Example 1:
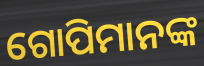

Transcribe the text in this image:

ଗୋପିମାନଙ୍କ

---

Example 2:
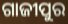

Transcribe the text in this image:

ଗାଜୀପୁର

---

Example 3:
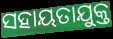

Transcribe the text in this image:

ସହାୟତାଯୁକ୍ତ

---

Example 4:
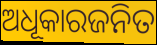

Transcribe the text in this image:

ଅଧୂକାରଜନିତ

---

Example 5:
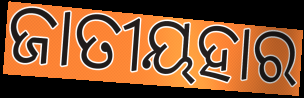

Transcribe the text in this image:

ଜାତୀୟହାର